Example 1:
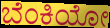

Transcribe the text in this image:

ಬೆಂಕಿಯೋ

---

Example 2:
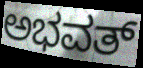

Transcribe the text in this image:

ಅಭವತ್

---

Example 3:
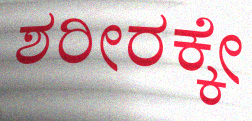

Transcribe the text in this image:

ಶರೀರಕ್ಕೇ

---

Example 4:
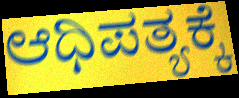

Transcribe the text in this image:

ಆಧಿಪತ್ಯಕ್ಕೆ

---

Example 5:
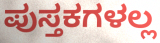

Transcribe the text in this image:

ಪುಸ್ತಕಗಳಲ್ಲ